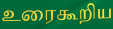
உரைகூறிய